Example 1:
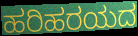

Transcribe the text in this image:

ಹರಿಹರಯದ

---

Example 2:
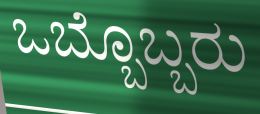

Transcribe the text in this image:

ಒಬ್ಬೊಬ್ಬರು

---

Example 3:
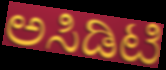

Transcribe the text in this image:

ಅಸಿಡಿಟಿ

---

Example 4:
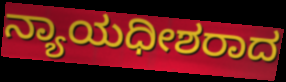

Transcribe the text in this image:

ನ್ಯಾಯಧೀಶರಾದ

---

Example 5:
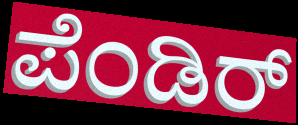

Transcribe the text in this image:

ಪೆಂಡಿರ್